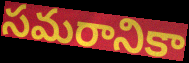
సమరానికా